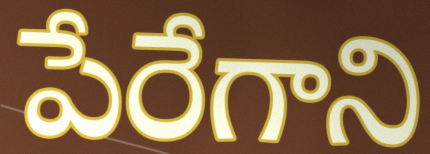
పేరేగాని